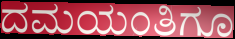
ದಮಯಂತಿಗೂ